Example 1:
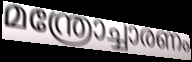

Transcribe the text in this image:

മന്ത്രോച്ചാരണം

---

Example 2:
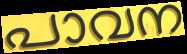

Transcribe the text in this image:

പാവന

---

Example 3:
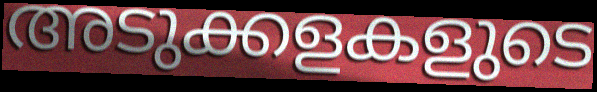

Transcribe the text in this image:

അടുക്കളകളുടെ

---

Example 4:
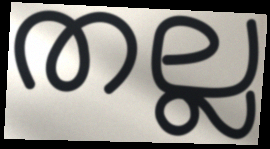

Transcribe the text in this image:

തല്ല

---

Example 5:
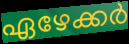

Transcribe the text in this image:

ഏഴേക്കർ